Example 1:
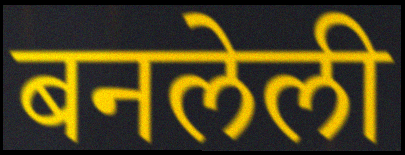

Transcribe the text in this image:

बनलेली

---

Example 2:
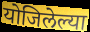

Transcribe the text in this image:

योजिलेल्या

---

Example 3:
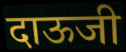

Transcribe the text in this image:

दाऊजी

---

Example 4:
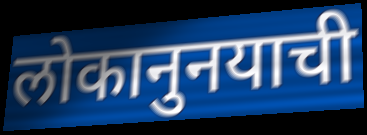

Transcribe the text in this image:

लोकानुनयाची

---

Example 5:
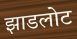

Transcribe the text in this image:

झाडलोट